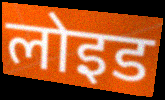
लोइड